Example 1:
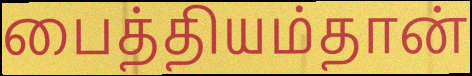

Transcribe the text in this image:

பைத்தியம்தான்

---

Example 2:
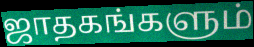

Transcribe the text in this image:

ஜாதகங்களும்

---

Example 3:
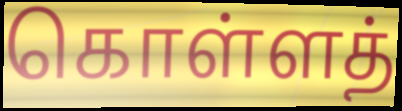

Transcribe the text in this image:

கொள்ளத்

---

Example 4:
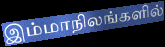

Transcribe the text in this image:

இம்மாநிலங்களில்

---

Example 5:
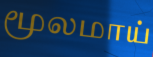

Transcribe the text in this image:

மூலமாய்